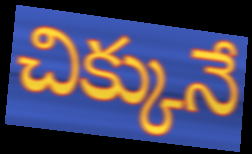
చిక్కునే